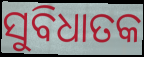
ସୁବିଧାତକ